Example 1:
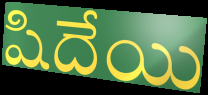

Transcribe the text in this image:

షిదేయి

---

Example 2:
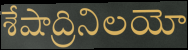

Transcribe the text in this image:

శేషాద్రినిలయో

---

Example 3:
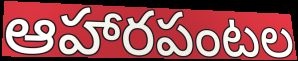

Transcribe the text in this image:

ఆహారపంటల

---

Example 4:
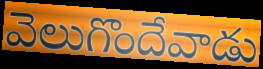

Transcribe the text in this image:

వెలుగొందేవాడు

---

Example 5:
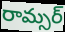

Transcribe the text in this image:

రామ్సర్